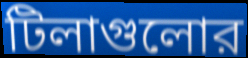
টিলাগুলোর